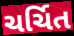
ચર્ચિત